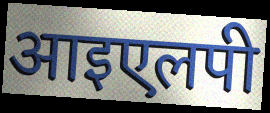
आइएलपी